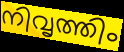
നിവൃത്തിം